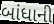
બાંધાની